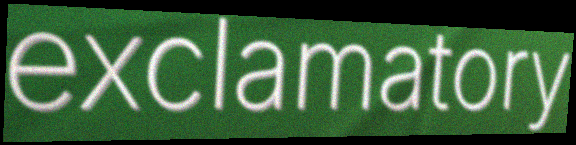
exclamatory